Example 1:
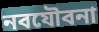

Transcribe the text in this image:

নবযৌবনা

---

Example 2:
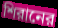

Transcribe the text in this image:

শিরানের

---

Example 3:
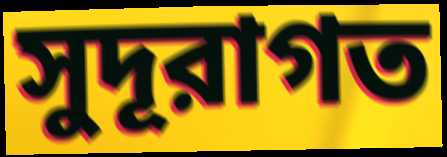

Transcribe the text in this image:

সুদূরাগত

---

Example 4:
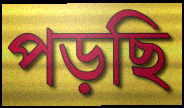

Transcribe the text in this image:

পড়ছি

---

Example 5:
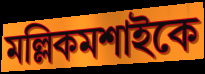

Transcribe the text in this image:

মল্লিকমশাইকে